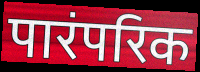
पारंपरिक